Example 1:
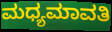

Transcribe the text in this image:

ಮಧ್ಯಮಾವತಿ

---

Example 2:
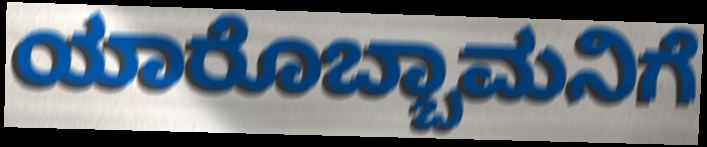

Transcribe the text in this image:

ಯಾರೊಬ್ಬಾಮನಿಗೆ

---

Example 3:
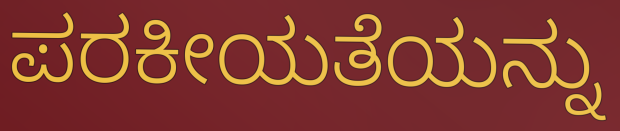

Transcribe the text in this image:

ಪರಕೀಯತೆಯನ್ನು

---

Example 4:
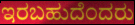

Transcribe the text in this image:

ಇರಬಹುದೆಂದರು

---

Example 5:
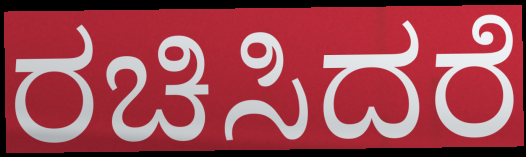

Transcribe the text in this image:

ರಚಿಸಿದರೆ